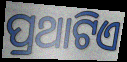
ପ୍ରଥାଟିଏ